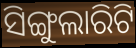
ସିଙ୍ଗୁଲାରିଟି